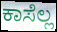
ಕಾಸೆಲ್ಲ